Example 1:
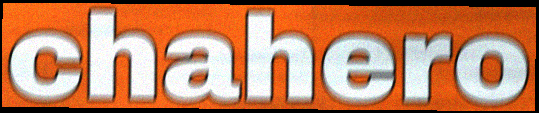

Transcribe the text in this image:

chahero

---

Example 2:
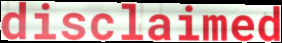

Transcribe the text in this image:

disclaimed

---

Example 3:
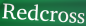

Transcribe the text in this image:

Redcross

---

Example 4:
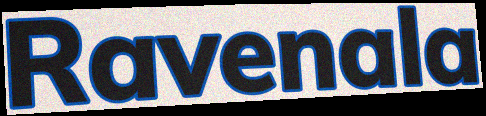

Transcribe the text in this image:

Ravenala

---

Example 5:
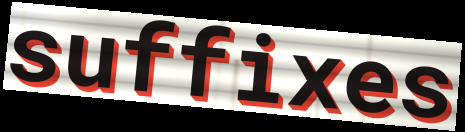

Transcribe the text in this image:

suffixes